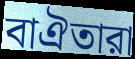
বাঐতারা